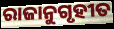
ରାଜାନୁଗୃହୀତ